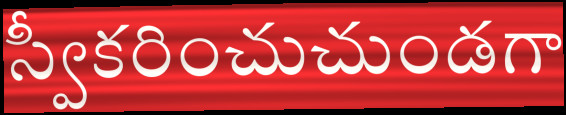
స్వీకరించుచుండగా